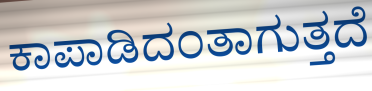
ಕಾಪಾಡಿದಂತಾಗುತ್ತದೆ